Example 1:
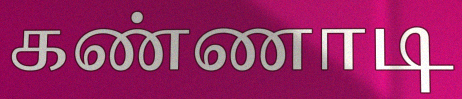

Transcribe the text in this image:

கண்ணாடி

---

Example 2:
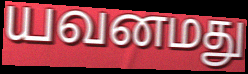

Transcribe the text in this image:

யவனமது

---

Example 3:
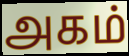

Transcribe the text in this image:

அகம்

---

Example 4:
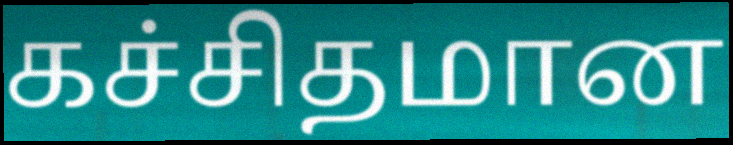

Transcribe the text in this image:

கச்சிதமான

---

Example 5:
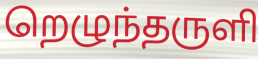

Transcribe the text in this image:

றெழுந்தருளி